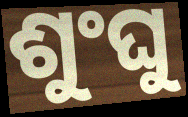
ଶୁଂଘୁ